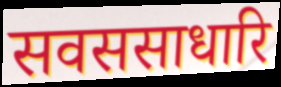
सवससाधारि